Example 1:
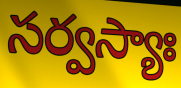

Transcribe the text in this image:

సర్వస్యాః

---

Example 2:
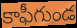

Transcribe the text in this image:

కాఫీగుండ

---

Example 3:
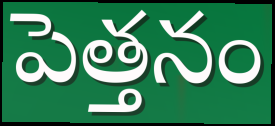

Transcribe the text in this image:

పెత్తనం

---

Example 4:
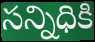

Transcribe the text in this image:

సన్నిధికి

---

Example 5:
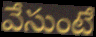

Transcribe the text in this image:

వేసుంటే